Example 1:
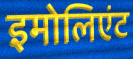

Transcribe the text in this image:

इमोलिएंट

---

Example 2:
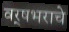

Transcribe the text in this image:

वर्षभराचे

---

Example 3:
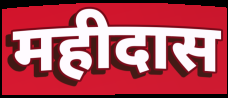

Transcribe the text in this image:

महीदास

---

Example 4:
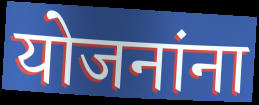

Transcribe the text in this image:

योजनांना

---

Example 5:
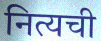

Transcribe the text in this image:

नित्यची